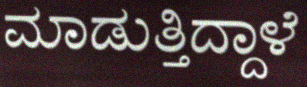
ಮಾಡುತ್ತಿದ್ದಾಳೆ